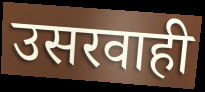
उसरवाही